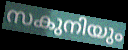
സകുനിയും